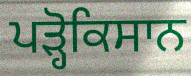
ਪੜ੍ਹੋਕਿਸਾਨ